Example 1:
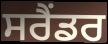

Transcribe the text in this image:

ਸਰੈਂਡਰ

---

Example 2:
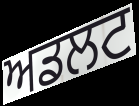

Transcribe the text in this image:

ਅਡਲਟ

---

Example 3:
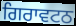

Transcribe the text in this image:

ਗਿਰਾਵਟਠ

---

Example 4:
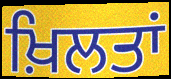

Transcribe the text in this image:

ਖ਼ਿਲਤਾਂ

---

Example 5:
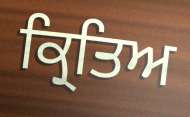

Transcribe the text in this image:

ਕ੍ਰਿਤਿਅ